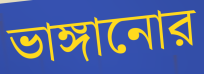
ভাঙ্গানোর